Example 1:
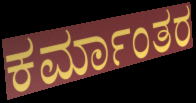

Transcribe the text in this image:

ಕರ್ಮಾಂತರ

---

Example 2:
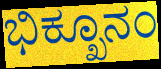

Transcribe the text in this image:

ಭಿಕ್ಖೂನಂ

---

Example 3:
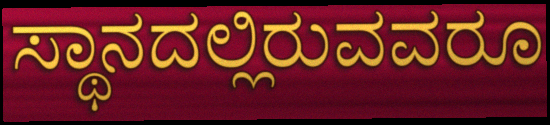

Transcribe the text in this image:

ಸ್ಥಾನದಲ್ಲಿರುವವರೂ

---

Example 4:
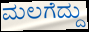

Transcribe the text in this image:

ಮಲಗೆದ್ದು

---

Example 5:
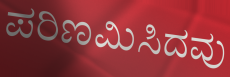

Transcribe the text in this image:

ಪರಿಣಮಿಸಿದವು